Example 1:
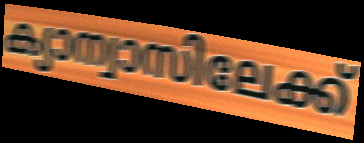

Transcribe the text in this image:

ക്യാന്വാസിലേക്ക്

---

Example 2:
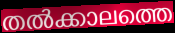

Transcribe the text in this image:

തൽക്കാലത്തെ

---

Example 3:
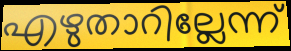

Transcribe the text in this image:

എഴുതാറില്ലേന്ന്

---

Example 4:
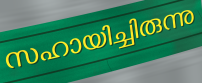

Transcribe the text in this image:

സഹായിച്ചിരുന്നു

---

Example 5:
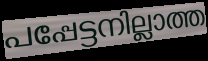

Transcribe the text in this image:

പപ്പേട്ടനില്ലാത്ത